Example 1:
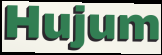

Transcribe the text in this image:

Hujum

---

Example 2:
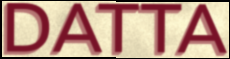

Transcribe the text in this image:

DATTA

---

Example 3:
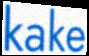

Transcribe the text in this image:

kake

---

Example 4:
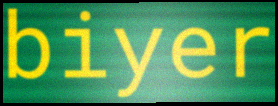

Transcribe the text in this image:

biyer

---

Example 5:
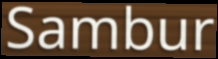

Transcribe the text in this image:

Sambur